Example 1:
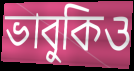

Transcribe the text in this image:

ভাবুকিও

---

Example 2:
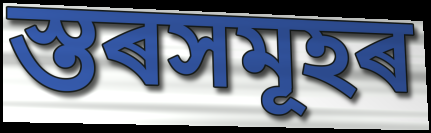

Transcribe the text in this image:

স্তৰসমূহৰ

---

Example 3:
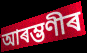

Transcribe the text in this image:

আৰম্ভণীৰ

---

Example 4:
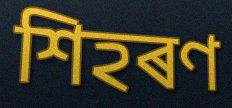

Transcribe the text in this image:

শিহৰণ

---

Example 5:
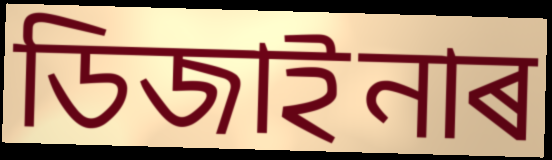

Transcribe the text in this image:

ডিজাইনাৰ